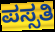
ಪಸ್ಸತಿ